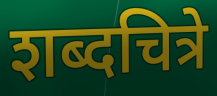
शब्दचित्रे